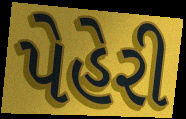
પેહેરી